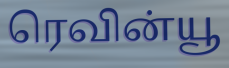
ரெவின்யூ